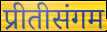
प्रीतीसंगम